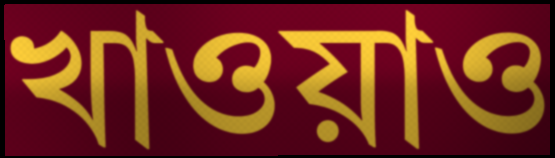
খাওয়াও